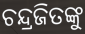
ଚନ୍ଦ୍ରଜିତଙ୍କୁ